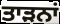
ਤਾੜਨਾਂ